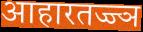
आहारतज्ज्ञ